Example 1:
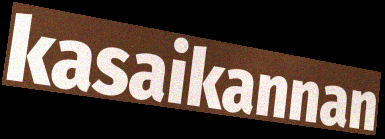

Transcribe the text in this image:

kasaikannan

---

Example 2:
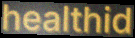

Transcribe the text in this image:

healthid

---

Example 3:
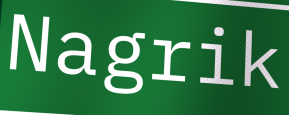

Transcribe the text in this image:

Nagrik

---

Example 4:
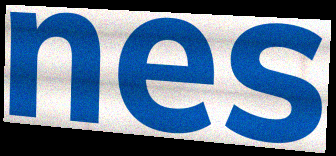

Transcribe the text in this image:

nes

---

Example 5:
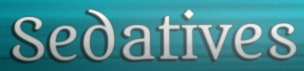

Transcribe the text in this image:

Sedatives